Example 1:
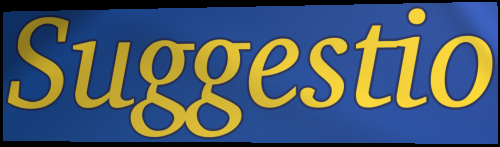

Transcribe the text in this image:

Suggestio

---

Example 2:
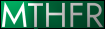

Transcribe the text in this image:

MTHFR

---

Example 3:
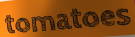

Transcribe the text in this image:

tomatoes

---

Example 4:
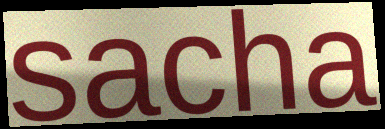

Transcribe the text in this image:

sacha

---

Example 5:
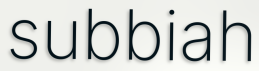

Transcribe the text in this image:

subbiah